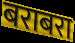
बराबरा